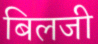
बिलजी